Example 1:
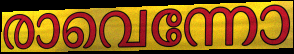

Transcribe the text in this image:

രാവെന്നോ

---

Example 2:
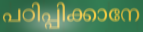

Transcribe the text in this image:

പഠിപ്പിക്കാനേ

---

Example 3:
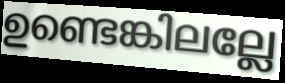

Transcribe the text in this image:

ഉണ്ടെങ്കിലല്ലേ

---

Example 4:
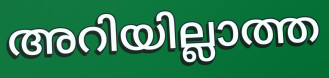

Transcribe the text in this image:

അറിയില്ലാത്ത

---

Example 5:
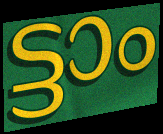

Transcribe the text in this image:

ട്ടാം